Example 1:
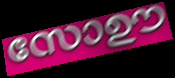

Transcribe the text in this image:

സോഊ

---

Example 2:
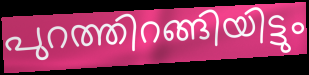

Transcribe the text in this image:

പുറത്തിറങ്ങിയിട്ടും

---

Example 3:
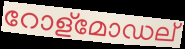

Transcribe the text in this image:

റോള്മോഡല്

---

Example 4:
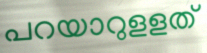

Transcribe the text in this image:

പറയാറുളളത്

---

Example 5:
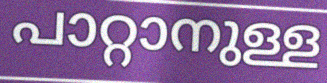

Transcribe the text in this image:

പാറ്റാനുള്ള